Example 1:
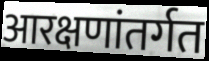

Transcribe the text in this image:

आरक्षणांतर्गत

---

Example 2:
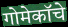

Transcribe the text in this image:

गोमेकॉचे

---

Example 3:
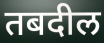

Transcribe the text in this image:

तबदील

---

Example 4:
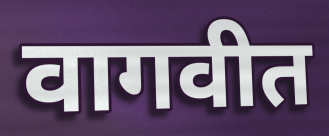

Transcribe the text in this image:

वागवीत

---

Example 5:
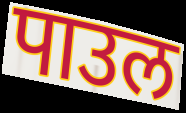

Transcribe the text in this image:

पाउल